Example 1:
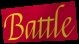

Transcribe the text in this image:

Battle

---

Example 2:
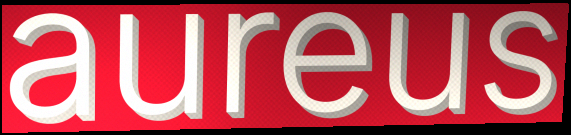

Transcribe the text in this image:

aureus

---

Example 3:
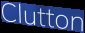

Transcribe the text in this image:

Clutton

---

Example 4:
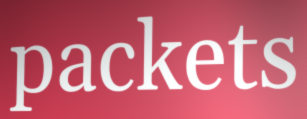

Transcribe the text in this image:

packets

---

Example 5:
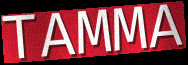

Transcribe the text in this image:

TAMMA